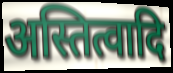
अस्तित्वादि